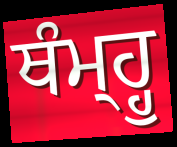
ਥੰਮ੍ਹ੍ਹੁ